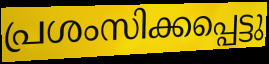
പ്രശംസിക്കപ്പെട്ടു